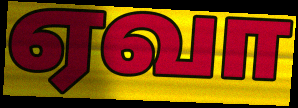
ஏவா